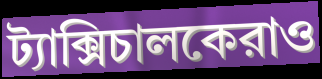
ট্যাক্সিচালকেরাও